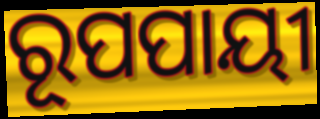
ରୂପପାୟୀ